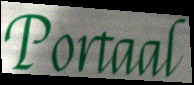
Portaal